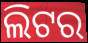
ଲିଟର